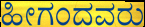
ಹೀಗಂದವರು